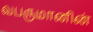
வபருமானின்